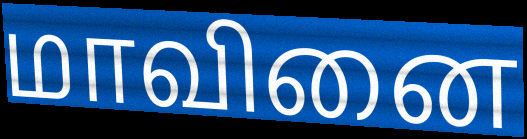
மாவினை